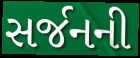
સર્જનની